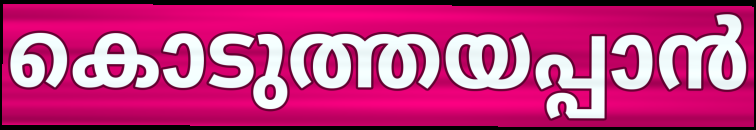
കൊടുത്തയപ്പാൻ